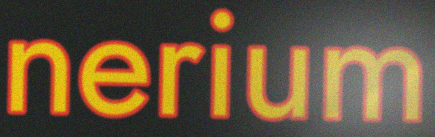
nerium